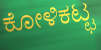
ಕೋಳಿಕಟ್ಟ